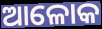
ଆଳୋକ